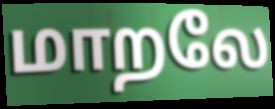
மாறலே